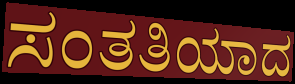
ಸಂತತಿಯಾದ